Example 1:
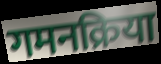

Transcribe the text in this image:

गमनक्रिया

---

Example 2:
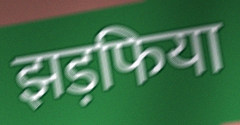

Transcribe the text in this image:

झड़फिया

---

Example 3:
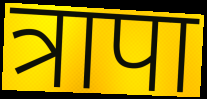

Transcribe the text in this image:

त्रापा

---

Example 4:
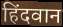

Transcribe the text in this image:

हिंदवान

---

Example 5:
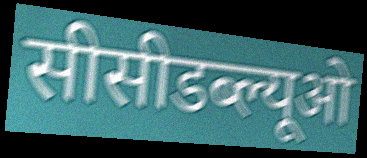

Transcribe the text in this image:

सीसीडब्ल्यूओ